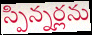
స్పిన్నర్లను